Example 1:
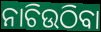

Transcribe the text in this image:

ନାଚିଉଠିବା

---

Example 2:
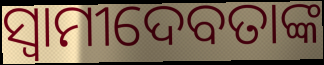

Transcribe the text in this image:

ସ୍ୱାମୀଦେବତାଙ୍କ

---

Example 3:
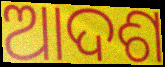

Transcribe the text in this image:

ଆଦଶ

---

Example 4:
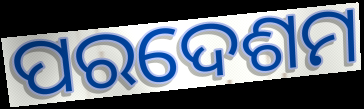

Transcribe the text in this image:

ପରଦେଶମ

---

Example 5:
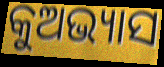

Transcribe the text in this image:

କୁଅଭ୍ୟାସ